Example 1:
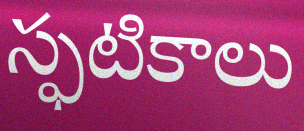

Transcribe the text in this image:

స్ఫటికాలు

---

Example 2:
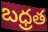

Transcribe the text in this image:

బధ్రత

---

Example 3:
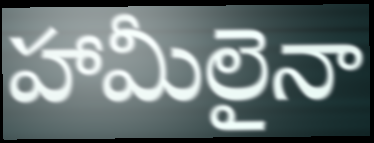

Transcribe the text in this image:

హామీలైనా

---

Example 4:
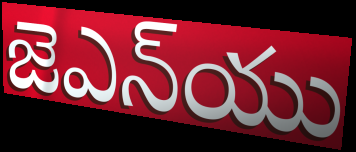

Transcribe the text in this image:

జెఎన్‌యు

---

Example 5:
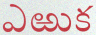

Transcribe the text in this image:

ఎఱుక